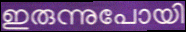
ഇരുന്നുപോയി